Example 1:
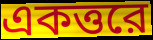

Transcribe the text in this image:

একত্তরে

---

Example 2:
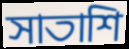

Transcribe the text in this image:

সাতাশি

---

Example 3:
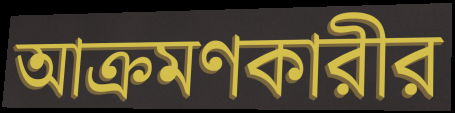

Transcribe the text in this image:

আক্রমণকারীর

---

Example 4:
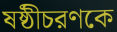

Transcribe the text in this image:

ষষ্ঠীচরণকে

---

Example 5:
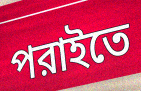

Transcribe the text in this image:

পরাইতে